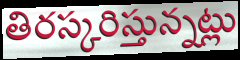
తిరస్కరిస్తున్నట్లు